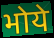
भोये